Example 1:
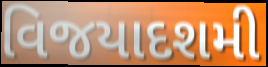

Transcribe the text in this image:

વિજયાદશમી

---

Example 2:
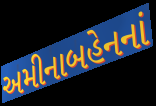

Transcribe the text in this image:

અમીનાબહેનનાં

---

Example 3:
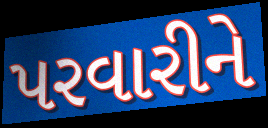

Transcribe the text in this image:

પરવારીને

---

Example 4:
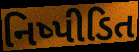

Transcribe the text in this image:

નિષ્પીડિત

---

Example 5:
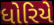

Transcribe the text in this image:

ધોરિયે